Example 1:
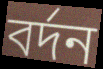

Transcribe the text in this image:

বর্দন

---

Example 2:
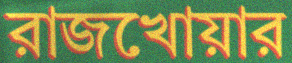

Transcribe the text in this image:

রাজখোয়ার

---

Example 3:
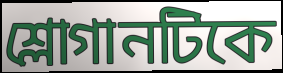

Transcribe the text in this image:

শ্লোগানটিকে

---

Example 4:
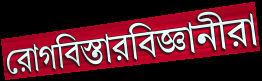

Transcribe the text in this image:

রোগবিস্তারবিজ্ঞানীরা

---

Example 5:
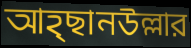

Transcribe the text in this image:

আহ্ছানউল্লার